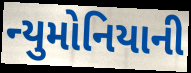
ન્યુમોનિયાની